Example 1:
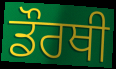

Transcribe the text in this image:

ਡੌਰਥੀ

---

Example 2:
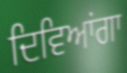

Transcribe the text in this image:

ਦਿਵਿਆਂਗਾ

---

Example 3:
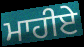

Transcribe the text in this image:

ਮਾਹੀਏ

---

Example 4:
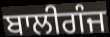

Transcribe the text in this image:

ਬਾਲੀਗੰਜ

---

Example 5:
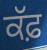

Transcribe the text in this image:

ਕੱਫ਼